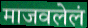
माजवलेलं